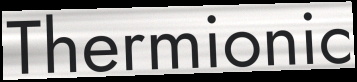
Thermionic